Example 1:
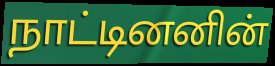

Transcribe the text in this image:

நாட்டினனின்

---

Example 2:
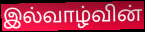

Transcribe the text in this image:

இல்வாழ்வின்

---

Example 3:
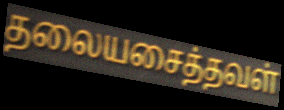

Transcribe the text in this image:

தலையசைத்தவள்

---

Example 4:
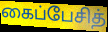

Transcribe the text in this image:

கைப்பேசித்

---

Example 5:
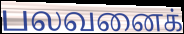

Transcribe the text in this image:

பலவனைக்